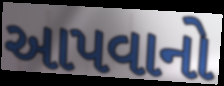
આપવાનો